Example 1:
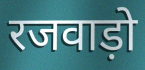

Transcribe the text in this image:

रजवाड़ो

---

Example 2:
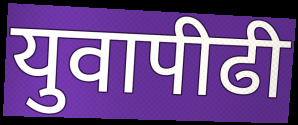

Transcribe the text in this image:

युवापीढी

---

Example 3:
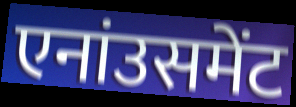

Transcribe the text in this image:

एनांउसमेंट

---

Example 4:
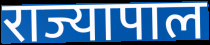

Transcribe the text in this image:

राज्यापाल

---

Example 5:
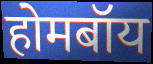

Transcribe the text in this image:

होमबॉय